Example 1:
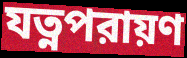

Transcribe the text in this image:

যত্নপরায়ণ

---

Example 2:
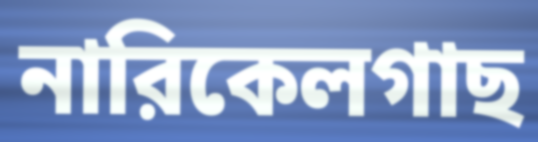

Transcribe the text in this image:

নারিকেলগাছ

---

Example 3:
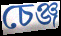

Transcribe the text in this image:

চেঞ্জ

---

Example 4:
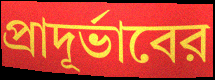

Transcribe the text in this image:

প্রাদূর্ভাবের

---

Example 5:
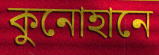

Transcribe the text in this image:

কুনোহানে